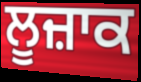
ਲੂਜ਼ਾਕ